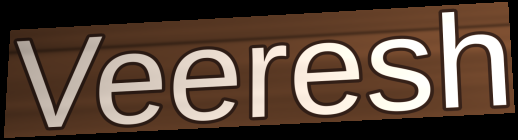
Veeresh